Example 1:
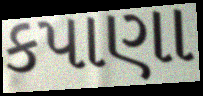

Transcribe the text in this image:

કપાણા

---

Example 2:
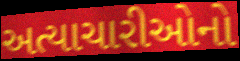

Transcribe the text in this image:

અત્યાચારીઓનો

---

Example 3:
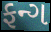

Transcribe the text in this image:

ફન્ગ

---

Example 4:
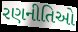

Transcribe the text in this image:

રણનીતિઓ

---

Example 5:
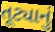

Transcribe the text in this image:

તૂટ્યાનું